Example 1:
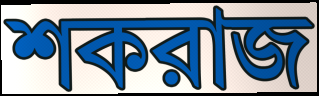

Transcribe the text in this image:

শকরাজ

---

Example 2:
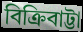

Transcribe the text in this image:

বিক্রিবাট্টা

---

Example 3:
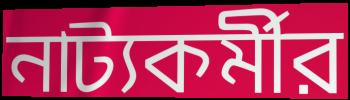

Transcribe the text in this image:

নাট্যকর্মীর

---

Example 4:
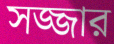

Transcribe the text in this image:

সজ্জার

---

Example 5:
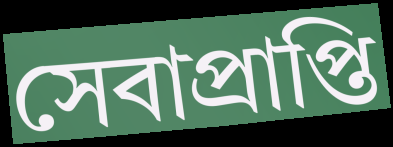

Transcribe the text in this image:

সেবাপ্রাপ্তি